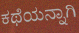
ಕಥೆಯನ್ನಾಗಿ